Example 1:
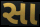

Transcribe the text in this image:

સા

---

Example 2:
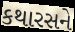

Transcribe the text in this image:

કથારસને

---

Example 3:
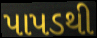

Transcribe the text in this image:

પાપડથી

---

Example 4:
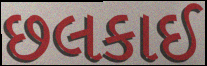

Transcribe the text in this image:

છલકાઈ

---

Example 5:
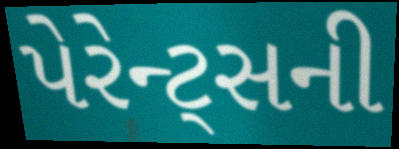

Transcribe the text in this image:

પેરેન્ટ્સની